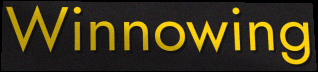
Winnowing